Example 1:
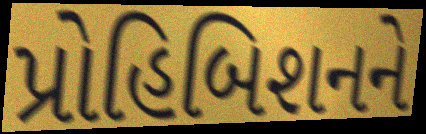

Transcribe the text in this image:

પ્રોહિબિશનને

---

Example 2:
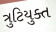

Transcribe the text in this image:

ત્રુટિયુક્ત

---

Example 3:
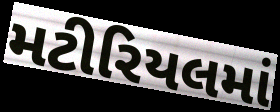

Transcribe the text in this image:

મટીરિયલમાં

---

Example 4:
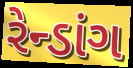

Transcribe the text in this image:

રેન્ડાંગ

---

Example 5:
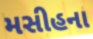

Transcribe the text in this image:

મસીહના